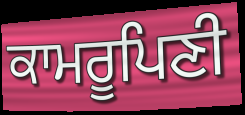
ਕਾਮਰੂਪਿਣੀ